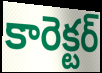
కారెక్టర్